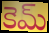
కెమ్